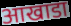
आखाडा